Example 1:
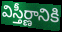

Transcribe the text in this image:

విస్తీర్ణానికి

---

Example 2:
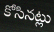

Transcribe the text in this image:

కోసినట్లు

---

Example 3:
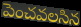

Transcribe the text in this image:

పెంచవలసిన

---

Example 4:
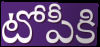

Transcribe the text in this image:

టోపీకి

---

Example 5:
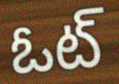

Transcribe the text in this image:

ఓట్